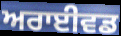
ਅਰਾਈਵਡ